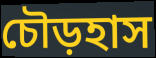
চৌড়হাস